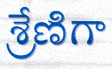
శ్రేణిగా